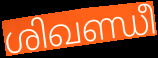
ശിഖണ്ഡീ